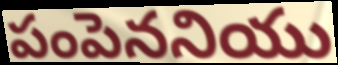
పంపెననియు